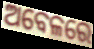
ଅବେଳରେ